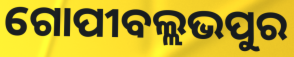
ଗୋପୀବଲ୍ଲଭପୁର